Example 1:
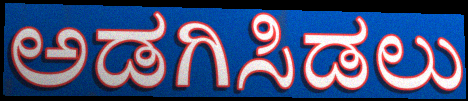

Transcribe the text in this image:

ಅಡಗಿಸಿಡಲು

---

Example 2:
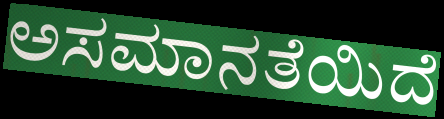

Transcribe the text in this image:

ಅಸಮಾನತೆಯಿದೆ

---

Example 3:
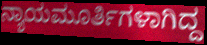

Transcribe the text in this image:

ನ್ಯಾಯಮೂರ್ತಿಗಳಾಗಿದ್ದ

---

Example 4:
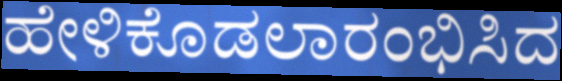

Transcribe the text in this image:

ಹೇಳಿಕೊಡಲಾರಂಭಿಸಿದ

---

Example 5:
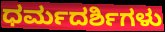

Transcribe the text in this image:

ಧರ್ಮದರ್ಶಿಗಳು